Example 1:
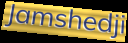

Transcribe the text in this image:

Jamshedji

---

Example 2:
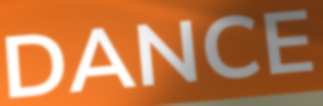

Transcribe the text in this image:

DANCE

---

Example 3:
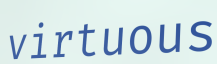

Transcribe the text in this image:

virtuous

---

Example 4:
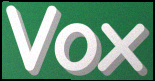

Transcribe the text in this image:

Vox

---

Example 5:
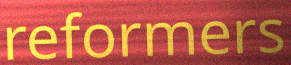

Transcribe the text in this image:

reformers